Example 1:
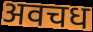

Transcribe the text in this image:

अवचध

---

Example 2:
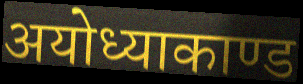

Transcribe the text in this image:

अयोध्याकाण्ड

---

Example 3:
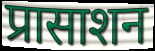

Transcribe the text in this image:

प्रासाशन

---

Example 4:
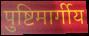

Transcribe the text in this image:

पुष्टिमार्गीय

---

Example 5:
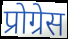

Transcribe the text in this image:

प्रोग्रेस